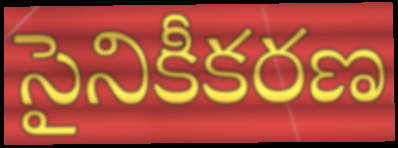
సైనికీకరణ